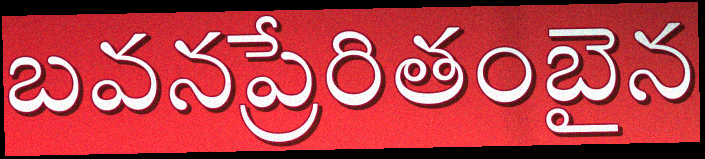
బవనప్రేరితంబైన